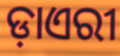
ଡ଼ାଏରୀ